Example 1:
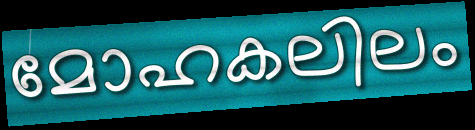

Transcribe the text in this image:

മോഹകലിലം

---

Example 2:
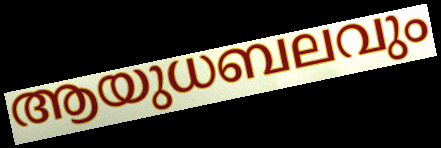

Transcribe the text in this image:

ആയുധബലവും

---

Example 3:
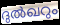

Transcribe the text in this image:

ദുൽഖറും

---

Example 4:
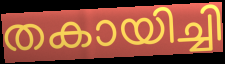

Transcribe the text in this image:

തകായിച്ചി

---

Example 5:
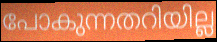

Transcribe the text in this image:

പോകുന്നതറിയില്ല